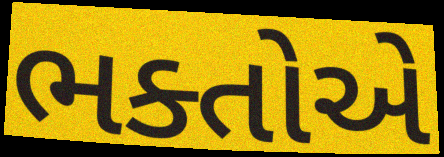
ભક્તોએ